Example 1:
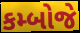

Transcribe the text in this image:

કમ્બોજે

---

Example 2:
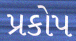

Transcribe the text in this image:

પ્રકોપ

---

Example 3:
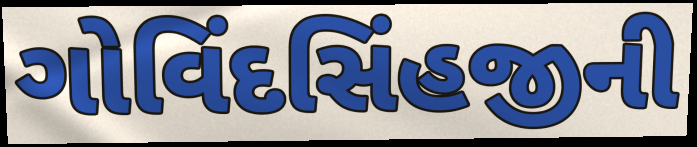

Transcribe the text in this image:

ગોવિંદસિંહજીની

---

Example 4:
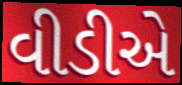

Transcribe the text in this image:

વીડીએ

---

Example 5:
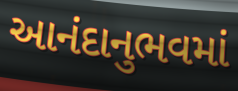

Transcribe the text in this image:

આનંદાનુભવમાં